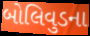
બોલિવુડના